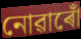
নোৱাৰোঁ